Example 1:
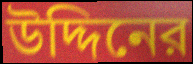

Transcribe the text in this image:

উদ্দিনের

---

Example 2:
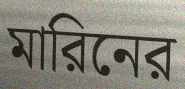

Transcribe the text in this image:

মারিনের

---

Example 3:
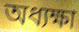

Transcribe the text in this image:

অধ্যক্ষা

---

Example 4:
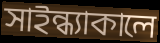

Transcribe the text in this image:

সাইন্ধ্যাকালে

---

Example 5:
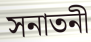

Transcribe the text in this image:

সনাতনী